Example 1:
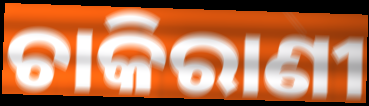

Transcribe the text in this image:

ଚାକିରାଣୀ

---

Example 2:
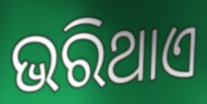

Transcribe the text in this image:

ଭରିଥାଏ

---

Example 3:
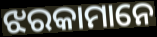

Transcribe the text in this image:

ଝରକାମାନେ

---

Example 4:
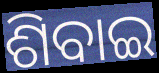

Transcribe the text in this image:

ଶିବାଇ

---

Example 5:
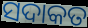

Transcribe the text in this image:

ସଦାକତ